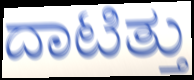
ದಾಟಿತ್ತು